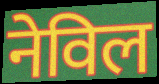
नेविल